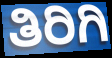
ತಿರಿಗಿ